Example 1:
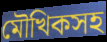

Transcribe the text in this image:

মৌখিকসহ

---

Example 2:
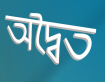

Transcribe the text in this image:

অদ্বৈত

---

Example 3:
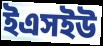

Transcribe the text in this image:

ইএসইউ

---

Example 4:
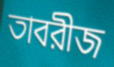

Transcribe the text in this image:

তাবরীজ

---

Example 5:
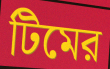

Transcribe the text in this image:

টিমের